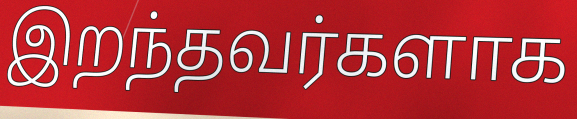
இறந்தவர்களாக